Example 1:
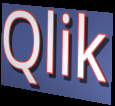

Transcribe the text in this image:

Qlik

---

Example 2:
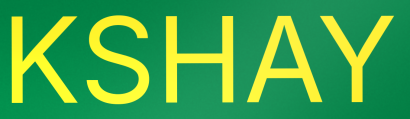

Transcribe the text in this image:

KSHAY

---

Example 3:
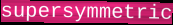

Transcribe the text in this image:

supersymmetric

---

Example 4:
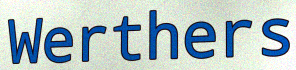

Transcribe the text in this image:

Werthers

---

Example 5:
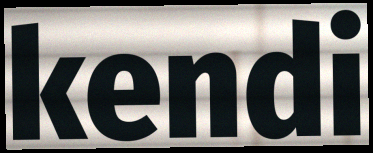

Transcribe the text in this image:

kendi